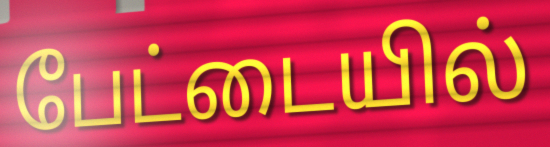
பேட்டையில்